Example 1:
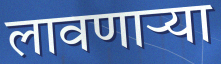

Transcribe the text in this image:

लावणाऱ्या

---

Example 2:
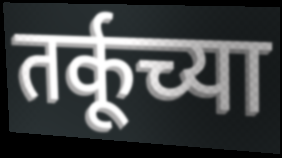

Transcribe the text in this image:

तर्कूच्या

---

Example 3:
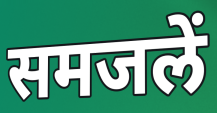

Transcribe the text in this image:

समजलें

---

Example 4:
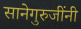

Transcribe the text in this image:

सानेगुरुजींनी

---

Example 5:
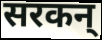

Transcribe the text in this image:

सरकन्